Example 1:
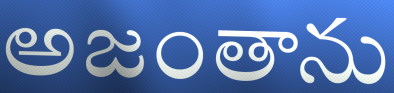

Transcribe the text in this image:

అజంతాను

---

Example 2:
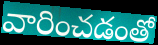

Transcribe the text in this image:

వారించడంతో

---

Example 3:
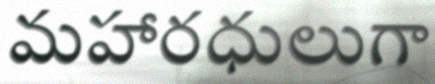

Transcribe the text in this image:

మహారధులుగా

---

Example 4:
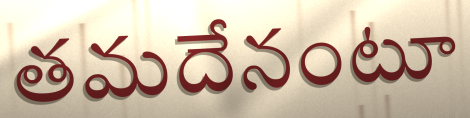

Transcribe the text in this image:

తమదేనంటూ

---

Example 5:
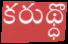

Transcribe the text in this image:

కరుథ్ధొ